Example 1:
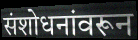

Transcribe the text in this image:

संशोधनांवरून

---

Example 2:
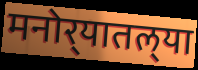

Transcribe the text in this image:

मनोर्‍यातल्या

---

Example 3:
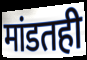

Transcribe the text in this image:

मांडतही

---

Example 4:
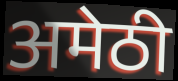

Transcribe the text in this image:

अमेठी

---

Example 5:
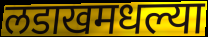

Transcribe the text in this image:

लडाखमधल्या